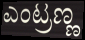
ಎಂಟ್ರಣ್ಣ